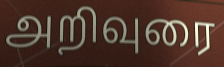
அறிவுரை